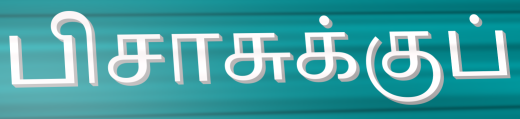
பிசாசுக்குப்